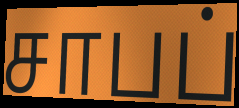
சாபப்